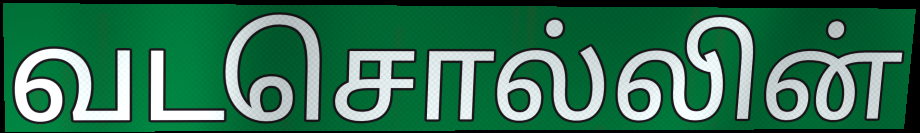
வடசொல்லின்